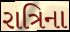
રાત્રિના